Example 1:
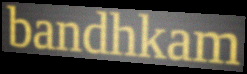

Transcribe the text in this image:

bandhkam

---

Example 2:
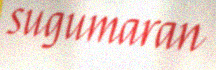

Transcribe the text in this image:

sugumaran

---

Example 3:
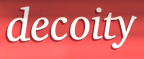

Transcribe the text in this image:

decoity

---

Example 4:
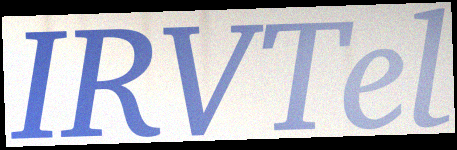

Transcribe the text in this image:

IRVTel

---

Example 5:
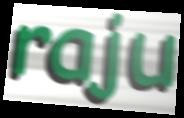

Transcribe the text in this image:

raju